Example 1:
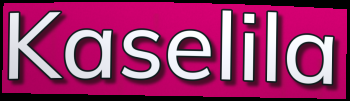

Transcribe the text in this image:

Kaselila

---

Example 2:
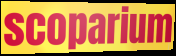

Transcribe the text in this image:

scoparium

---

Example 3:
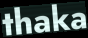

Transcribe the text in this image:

thaka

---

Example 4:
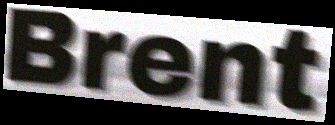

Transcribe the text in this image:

Brent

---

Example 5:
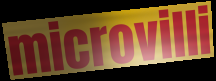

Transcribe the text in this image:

microvilli